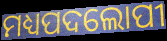
ମଧ୍ଯପଦଲୋପୀ